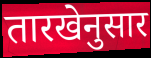
तारखेनुसार